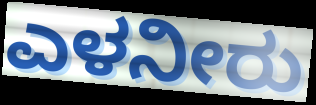
ಎಳನೀರು